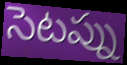
సెటప్ను